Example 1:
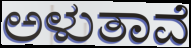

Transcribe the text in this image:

ಅಳುತಾವೆ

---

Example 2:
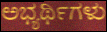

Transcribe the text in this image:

ಅಭ್ಯರ್ಥಿಗಳು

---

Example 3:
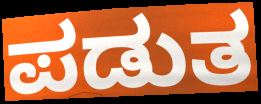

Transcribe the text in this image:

ಪಡುತ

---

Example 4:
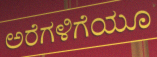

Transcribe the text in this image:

ಅರೆಗಳಿಗೆಯೂ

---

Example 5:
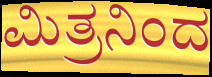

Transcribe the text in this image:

ಮಿತ್ರನಿಂದ